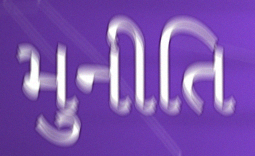
મુનીતિ